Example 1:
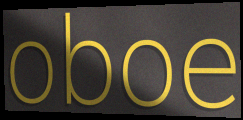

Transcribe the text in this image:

oboe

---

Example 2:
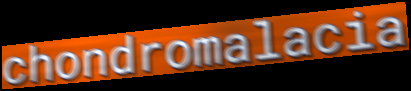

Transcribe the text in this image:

chondromalacia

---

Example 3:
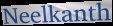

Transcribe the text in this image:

Neelkanth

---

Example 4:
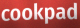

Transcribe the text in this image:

cookpad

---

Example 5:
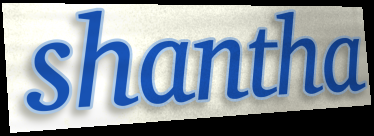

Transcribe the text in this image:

shantha